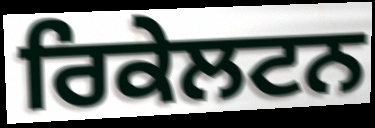
ਰਿਕੇਲਟਨ